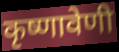
कृष्णावेणी